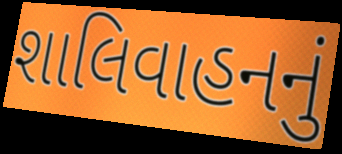
શાલિવાહનનું